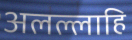
अलल्लाहि